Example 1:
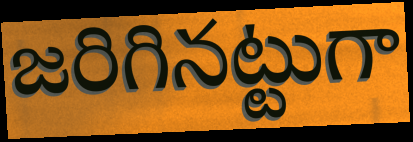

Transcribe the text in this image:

జరిగినట్టుగా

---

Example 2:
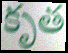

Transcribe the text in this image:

కృత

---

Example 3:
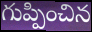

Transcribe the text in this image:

గుప్పించిన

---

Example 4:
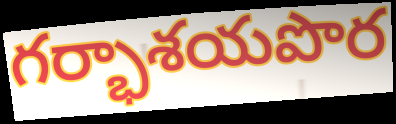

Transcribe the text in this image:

గర్భాశయపొర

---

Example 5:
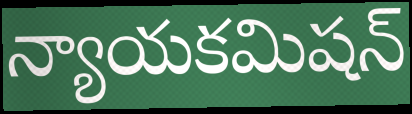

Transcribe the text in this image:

న్యాయకమిషన్